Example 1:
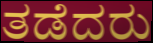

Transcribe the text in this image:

ತಡೆದರು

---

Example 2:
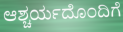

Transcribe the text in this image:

ಆಶ್ಚರ್ಯದೊಂದಿಗೆ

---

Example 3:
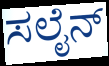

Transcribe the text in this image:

ಸಲೈನ್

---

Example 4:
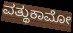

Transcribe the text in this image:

ವತ್ಥುಕಾಮೋ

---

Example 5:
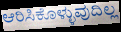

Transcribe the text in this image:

ಆರಿಸಿಕೊಳ್ಳುವುದಿಲ್ಲ